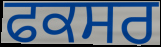
ਫਕਸਰ